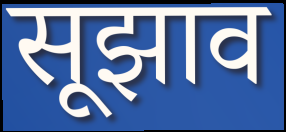
सूझाव